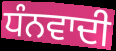
ਧੰਨਵਾਦੀ